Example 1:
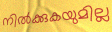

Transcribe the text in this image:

നിൽക്കുകയുമില്ല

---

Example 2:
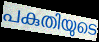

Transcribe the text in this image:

പകുതിയുടെ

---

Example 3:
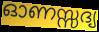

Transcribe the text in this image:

ഓണസ്സദ്യ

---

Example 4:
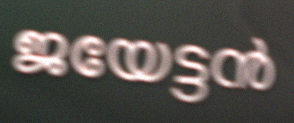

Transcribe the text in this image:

ജയേട്ടൻ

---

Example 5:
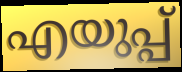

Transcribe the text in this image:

എയുപ്പ്